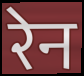
रेन